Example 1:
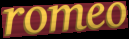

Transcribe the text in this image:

romeo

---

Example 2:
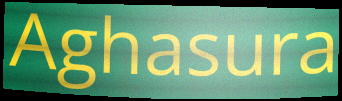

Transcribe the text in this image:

Aghasura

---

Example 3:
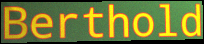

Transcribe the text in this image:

Berthold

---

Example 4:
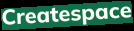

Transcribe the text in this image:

Createspace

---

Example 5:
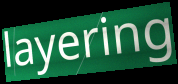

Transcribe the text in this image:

layering